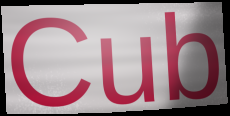
Cub